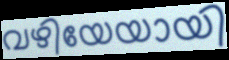
വഴിയേയായി